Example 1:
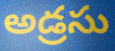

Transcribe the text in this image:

అడ్రసు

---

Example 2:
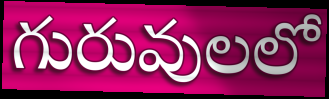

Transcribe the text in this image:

గురువులలో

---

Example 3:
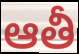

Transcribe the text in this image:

ఆతీ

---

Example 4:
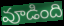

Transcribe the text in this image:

వూడింది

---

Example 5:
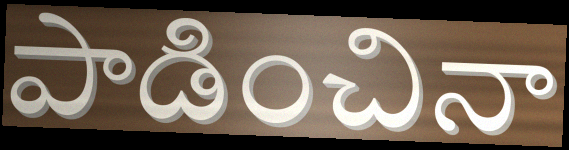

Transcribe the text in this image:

పాడించినా